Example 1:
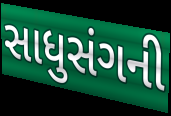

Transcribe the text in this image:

સાધુસંગની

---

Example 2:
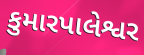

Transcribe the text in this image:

કુમારપાલેશ્વર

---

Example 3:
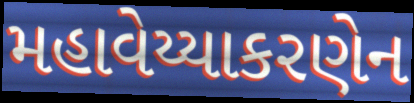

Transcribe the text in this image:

મહાવેય્યાકરણેન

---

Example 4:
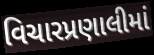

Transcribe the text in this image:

વિચારપ્રણાલીમાં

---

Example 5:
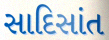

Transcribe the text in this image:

સાદિસાંત